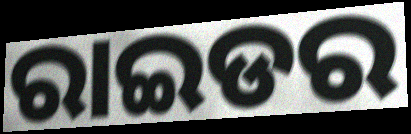
ରାଇଡର